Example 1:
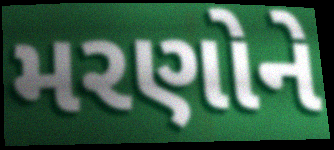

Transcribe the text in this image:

મરણોને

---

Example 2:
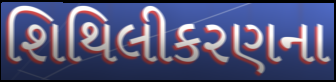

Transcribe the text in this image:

શિથિલીકરણના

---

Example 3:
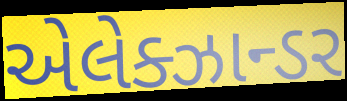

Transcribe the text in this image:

એલેક્ઝાન્ડર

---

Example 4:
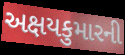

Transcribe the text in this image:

અક્ષયકુમારની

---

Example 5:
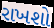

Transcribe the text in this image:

રાખશો